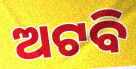
ଅଟବି